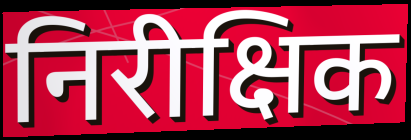
निरीक्षिक